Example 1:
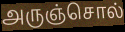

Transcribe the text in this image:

அருஞ்சொல்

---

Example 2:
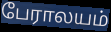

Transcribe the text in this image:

பேராலயம்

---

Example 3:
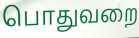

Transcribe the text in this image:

பொதுவறை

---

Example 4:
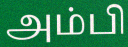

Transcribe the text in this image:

அம்பி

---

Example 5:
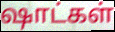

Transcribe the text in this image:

ஷாட்கள்